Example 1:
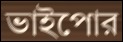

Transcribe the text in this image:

ভাইপোর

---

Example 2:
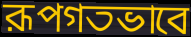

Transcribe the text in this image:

রূপগতভাবে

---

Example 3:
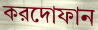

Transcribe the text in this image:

করদোফান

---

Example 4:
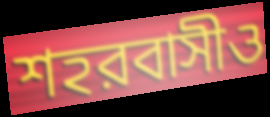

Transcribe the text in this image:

শহরবাসীও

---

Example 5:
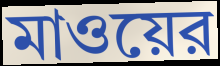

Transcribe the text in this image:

মাওয়ের